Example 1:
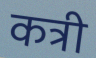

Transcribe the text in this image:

कत्री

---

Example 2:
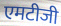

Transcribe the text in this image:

एमटीजी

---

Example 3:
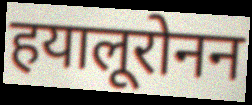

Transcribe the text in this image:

हयालूरोनन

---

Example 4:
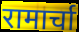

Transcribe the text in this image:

रामार्चा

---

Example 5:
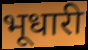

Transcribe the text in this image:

भूधारी